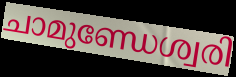
ചാമുണ്ഡേശ്വരി